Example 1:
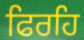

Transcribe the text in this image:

ਫਿਰਹਿ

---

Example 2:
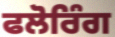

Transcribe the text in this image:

ਫਲੋਰਿੰਗ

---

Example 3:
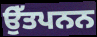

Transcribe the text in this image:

ਉੱਤਪਨਨ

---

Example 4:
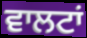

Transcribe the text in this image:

ਵਾਲਟਾਂ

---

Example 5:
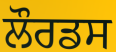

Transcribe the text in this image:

ਲੌਰਡਸ